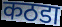
कठडा